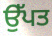
ਉੱਪਤ